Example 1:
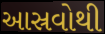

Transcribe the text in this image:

આસ્રવોથી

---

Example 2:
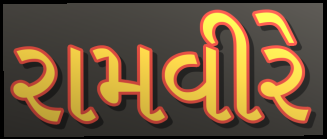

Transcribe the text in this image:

રામવીરે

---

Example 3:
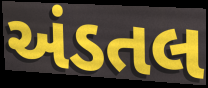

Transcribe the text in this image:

અંડતલ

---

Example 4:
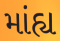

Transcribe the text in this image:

માંહ્ય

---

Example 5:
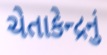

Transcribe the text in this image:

ચેતાકેન્દ્રનું